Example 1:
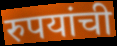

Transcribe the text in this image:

रुपयांची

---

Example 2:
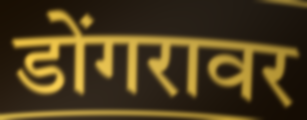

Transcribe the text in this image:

डोंगरावर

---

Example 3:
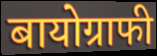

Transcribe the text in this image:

बायोग्राफी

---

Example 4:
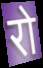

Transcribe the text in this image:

रो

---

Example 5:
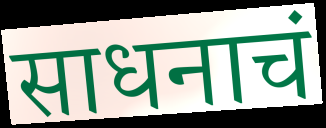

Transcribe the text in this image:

साधनाचं